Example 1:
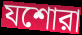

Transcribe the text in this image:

যশোরা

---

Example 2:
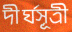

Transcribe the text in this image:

দীর্ঘসূত্রী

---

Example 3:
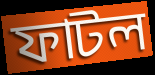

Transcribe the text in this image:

ফাটল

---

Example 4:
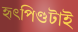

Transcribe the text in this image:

হৃৎপিণ্ডটাই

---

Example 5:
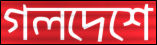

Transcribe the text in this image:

গলদেশে